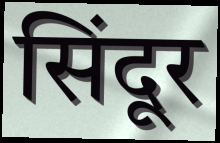
सिंदूर